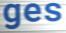
ges